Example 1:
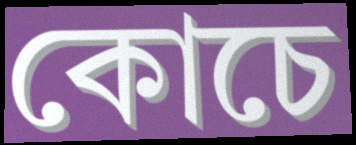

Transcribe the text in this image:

কোচে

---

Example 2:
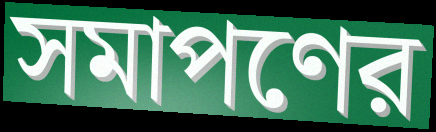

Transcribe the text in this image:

সমাপণের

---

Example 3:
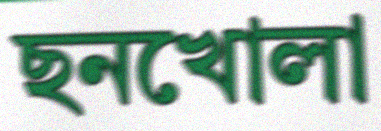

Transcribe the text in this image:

ছনখোলা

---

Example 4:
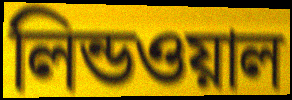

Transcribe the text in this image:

লিন্ডওয়াল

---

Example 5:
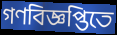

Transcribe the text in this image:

গণবিজ্ঞপ্তিতে